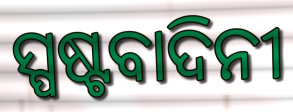
ସ୍ପଷ୍ଟବାଦିନୀ